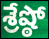
శ్రేష్ఠో